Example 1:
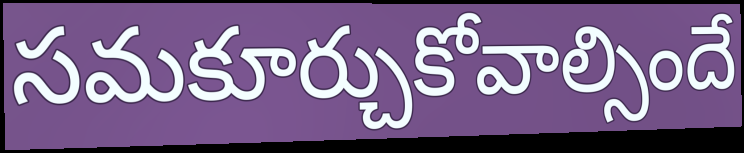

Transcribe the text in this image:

సమకూర్చుకోవాల్సిందే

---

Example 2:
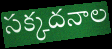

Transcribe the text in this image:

సక్కదనాల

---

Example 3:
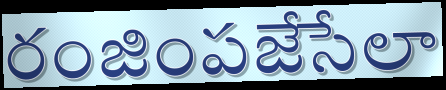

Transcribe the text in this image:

రంజింపజేసేలా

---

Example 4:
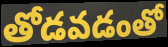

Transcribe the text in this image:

తోడవడంతో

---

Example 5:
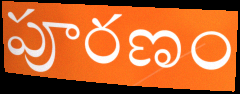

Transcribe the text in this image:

పూరణం